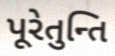
પૂરેતુન્તિ